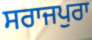
ਸਰਾਜਪੁਰਾ